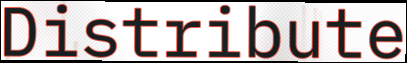
Distribute